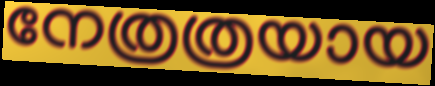
നേത്രത്രയായ